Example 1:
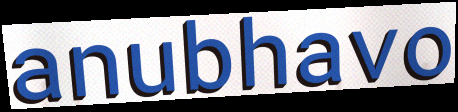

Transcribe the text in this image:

anubhavo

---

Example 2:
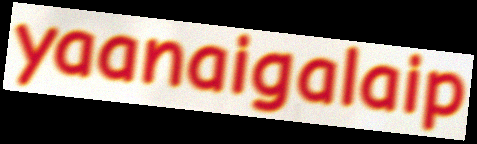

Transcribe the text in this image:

yaanaigalaip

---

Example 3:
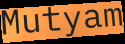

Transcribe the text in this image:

Mutyam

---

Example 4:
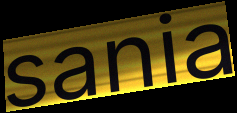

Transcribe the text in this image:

sania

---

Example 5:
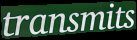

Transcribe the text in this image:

transmits